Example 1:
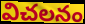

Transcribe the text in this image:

విచలనం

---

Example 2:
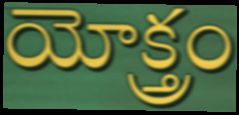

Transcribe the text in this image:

యోక్త్రం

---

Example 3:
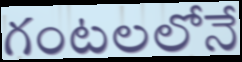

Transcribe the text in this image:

గంటలలోనే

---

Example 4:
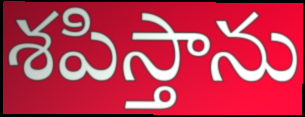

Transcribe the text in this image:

శపిస్తాను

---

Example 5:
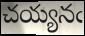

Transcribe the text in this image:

చయ్యనఁ